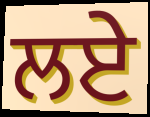
ਲਏੇ